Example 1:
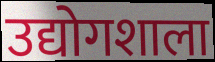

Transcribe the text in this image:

उद्योगशाला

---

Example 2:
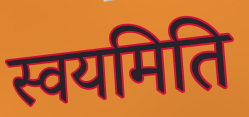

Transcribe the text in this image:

स्वयमिति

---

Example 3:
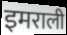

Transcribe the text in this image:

इमराली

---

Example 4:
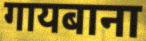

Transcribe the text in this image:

गायबाना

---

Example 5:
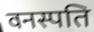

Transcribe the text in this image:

वनस्‍पति